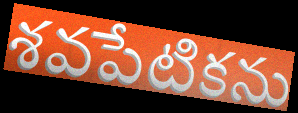
శవపేటికను